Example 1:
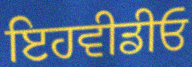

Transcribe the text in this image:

ਇਹਵੀਡੀਓ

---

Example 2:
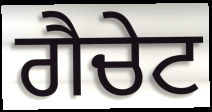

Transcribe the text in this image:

ਗੈਚੇਟ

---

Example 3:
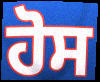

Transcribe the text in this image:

ਹੋਸ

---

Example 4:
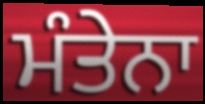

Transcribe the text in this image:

ਮੰਤੇਨਾ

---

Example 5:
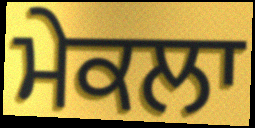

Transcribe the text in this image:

ਮੇਕਲਾ